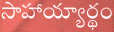
సాహాయ్యార్థం